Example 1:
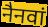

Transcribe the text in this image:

नैनवां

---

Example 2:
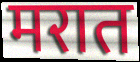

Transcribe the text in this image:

मरात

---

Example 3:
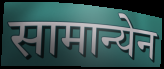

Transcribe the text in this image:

सामान्येन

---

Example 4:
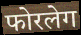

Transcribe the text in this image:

फोरलेग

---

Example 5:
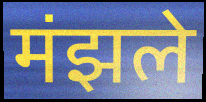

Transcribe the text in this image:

मंझले